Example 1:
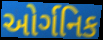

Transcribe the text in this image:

ઓર્ગનિક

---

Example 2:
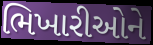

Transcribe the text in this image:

ભિખારીઓને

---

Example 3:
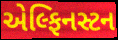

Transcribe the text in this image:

એલ્ફિનસ્ટન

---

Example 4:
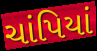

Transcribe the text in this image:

ચાંપિયાં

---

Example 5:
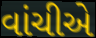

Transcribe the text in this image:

વાંચીએ